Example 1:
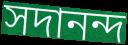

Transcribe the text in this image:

সদানন্দ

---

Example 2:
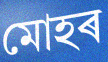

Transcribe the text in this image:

মোহৰ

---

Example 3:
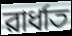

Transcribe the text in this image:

ৱাৰ্ধাত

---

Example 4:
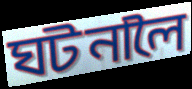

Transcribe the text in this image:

ঘটনালৈ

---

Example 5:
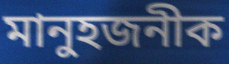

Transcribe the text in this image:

মানুহজনীক